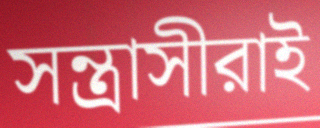
সন্ত্রাসীরাই